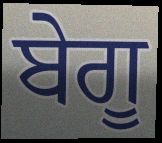
ਬੇਗੂ